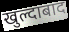
खुल्दाबाद